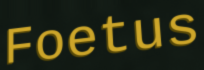
Foetus